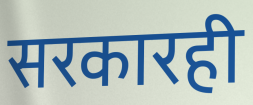
सरकारही